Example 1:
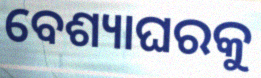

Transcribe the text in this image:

ବେଶ୍ୟାଘରକୁ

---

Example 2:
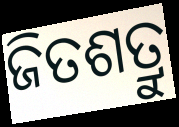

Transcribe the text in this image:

ଜିତଶତ୍ରୁ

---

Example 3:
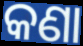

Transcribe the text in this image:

କଣା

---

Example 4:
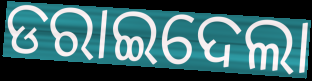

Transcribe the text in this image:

ଡରାଇଦେଲା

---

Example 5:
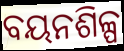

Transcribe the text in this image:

ବୟନଶିଳ୍ପ